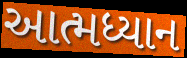
આત્મધ્યાન